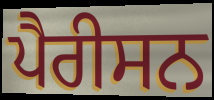
ਪੈਰੀਸਨ